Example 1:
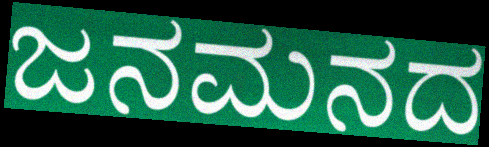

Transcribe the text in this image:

ಜನಮನದ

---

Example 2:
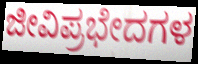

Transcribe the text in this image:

ಜೀವಿಪ್ರಭೇದಗಳ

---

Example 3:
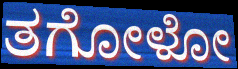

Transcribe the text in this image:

ತಗೋಳೋ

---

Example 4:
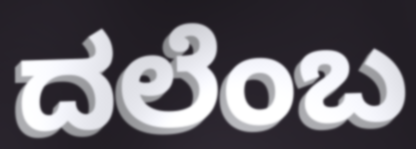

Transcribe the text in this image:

ದಲೆಂಬ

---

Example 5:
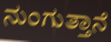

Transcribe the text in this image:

ನುಂಗುತ್ತಾನೆ